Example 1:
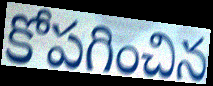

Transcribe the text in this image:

కోపగించిన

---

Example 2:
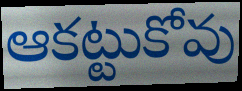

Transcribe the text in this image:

ఆకట్టుకోవు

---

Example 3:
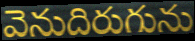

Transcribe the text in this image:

వెనుదిరుగును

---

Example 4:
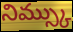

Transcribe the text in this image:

నిమ్స్కు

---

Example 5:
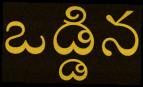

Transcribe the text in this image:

ఒడ్డిన